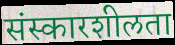
संस्कारशीलता